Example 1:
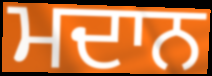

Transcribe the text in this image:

ਮਦਾਨ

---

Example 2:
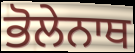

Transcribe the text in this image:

ਭੋਲੇਨਾਥ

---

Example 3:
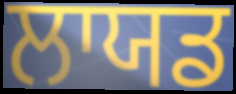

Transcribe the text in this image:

ਲਾਯਡ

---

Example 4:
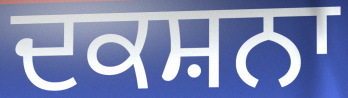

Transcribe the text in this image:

ਦਕਸ਼ਨਾ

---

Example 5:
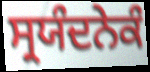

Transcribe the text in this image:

ਸ੍ਰਯੰਦਨੇਕੰ